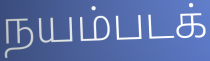
நயம்படக்